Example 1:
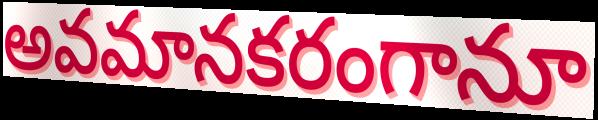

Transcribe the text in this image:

అవమానకరంగానూ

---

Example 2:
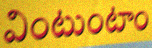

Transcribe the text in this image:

వింటుంటాం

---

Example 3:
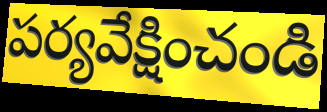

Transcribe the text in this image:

పర్యవేక్షించండి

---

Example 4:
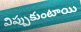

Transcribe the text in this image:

విప్పుకుంటాయి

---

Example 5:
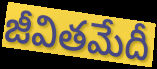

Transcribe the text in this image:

జీవితమేదీ